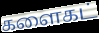
களைகட்